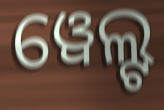
ୱେଲ୍ଟ